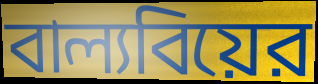
বাল্যবিয়ের